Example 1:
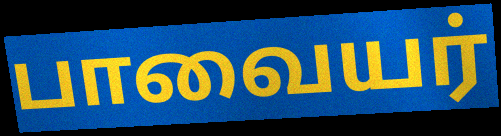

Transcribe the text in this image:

பாவையர்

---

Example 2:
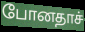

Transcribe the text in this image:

போனதாச்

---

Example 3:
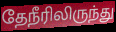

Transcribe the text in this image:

தேநீரிலிருந்து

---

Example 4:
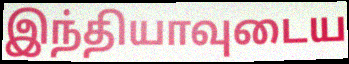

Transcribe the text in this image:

இந்தியாவுடைய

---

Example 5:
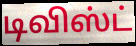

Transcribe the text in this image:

டிவிஸ்ட்